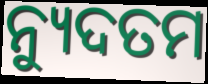
ନ୍ୟୁଦତମ